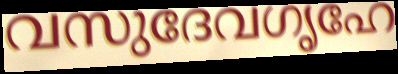
വസുദേവഗൃഹേ